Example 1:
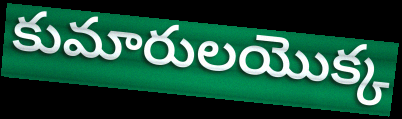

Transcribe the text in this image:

కుమారులయొక్క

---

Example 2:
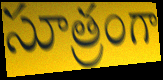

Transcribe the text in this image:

సూత్రంగా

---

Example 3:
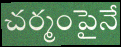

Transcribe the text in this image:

చర్మంపైనే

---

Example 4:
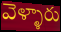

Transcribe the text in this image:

వెళ్ళారు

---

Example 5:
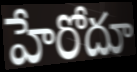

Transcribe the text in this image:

హేరోదూ